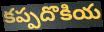
కప్పదొకియ